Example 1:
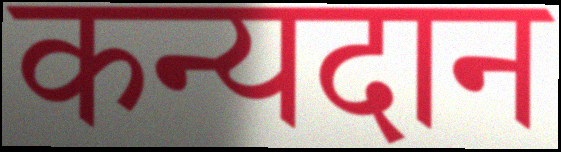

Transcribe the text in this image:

कन्यदान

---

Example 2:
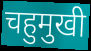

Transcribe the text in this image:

चहुमुखी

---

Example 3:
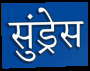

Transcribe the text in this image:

सुंड्रेस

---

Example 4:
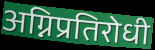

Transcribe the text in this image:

अग्निप्रतिरोधी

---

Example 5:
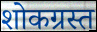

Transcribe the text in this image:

शोकग्रस्त